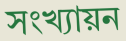
সংখ্যায়ন